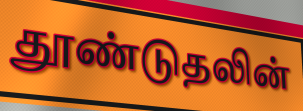
தூண்டுதலின்